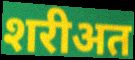
शरीअत